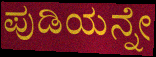
ಪುಡಿಯನ್ನೇ